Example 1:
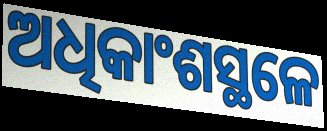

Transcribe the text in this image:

ଅଧିକାଂଶସ୍ଥଳେ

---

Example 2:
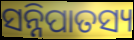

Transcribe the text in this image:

ସନ୍ନିପାତସ୍ୟ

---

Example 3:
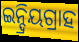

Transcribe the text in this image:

ଇନ୍ଦ୍ରିୟଗ୍ରାହ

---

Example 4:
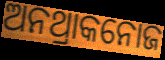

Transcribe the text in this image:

ଅନଥ୍ରାକନୋଜ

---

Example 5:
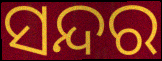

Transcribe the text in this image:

ସନ୍ଦର